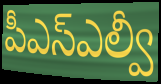
పీఎస్ఎల్వీ